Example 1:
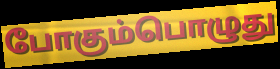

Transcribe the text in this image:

போகும்பொழுது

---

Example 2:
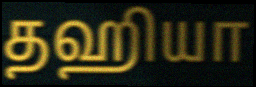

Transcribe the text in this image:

தஹியா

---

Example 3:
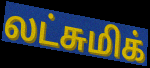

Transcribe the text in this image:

லட்சுமிக்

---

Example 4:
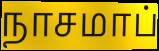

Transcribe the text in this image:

நாசமாப்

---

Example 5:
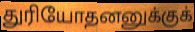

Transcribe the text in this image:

துரியோதனனுக்குக்